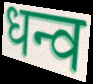
धन्व